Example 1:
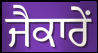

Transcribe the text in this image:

ਜੈਕਾਰੇਂ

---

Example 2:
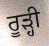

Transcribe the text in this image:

ਰੂੜ੍ਹੀ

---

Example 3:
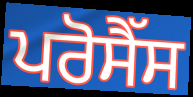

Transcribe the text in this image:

ਪਰੋਸੈੱਸ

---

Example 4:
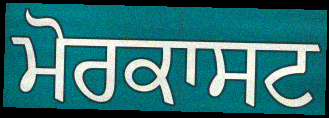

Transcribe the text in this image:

ਮੋਰਕਾਸਟ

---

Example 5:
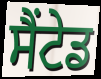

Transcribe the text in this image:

ਸੈਂਟੇਡ